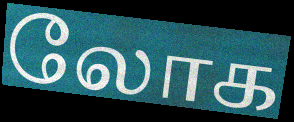
லோக